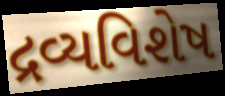
દ્રવ્યવિશેષ